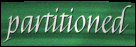
partitioned